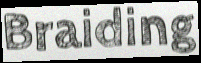
Braiding